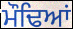
ਮੌਢਿਆਂ